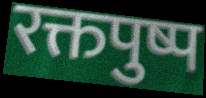
रक्तपुष्प